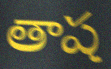
తాష